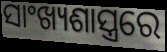
ସାଂଖ୍ୟଶାସ୍ତ୍ରରେ